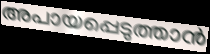
അപായപ്പെടുത്താൻ